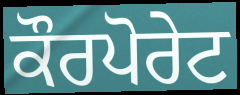
ਕੌਰਪੋਰੇਟ